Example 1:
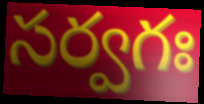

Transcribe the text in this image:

సర్వగః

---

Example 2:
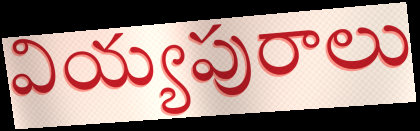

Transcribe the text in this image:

వియ్యపురాలు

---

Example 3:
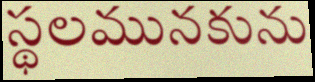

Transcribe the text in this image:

స్థలమునకును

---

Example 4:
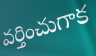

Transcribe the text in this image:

వర్తించుగాక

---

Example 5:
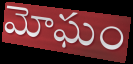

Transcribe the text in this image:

మోఘం